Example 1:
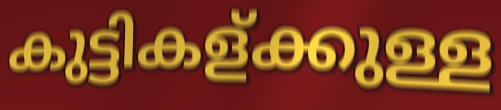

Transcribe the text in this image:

കുട്ടികള്ക്കുള്ള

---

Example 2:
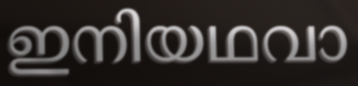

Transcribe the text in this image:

ഇനിയഥവാ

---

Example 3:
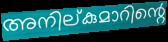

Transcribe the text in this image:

അനില്കുമാറിന്റെ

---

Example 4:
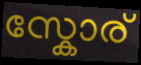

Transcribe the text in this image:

സ്കോര്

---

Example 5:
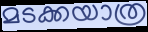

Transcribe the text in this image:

മടക്കയാത്ര